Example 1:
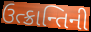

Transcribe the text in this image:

ઉત્ક્રાન્તિની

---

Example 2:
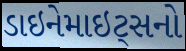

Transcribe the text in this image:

ડાઇનેમાઇટ્સનો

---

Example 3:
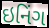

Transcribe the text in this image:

ઇનિંગ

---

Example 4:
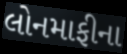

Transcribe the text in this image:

લોનમાફીના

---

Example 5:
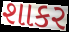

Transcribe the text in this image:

શાકર